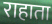
राहाता